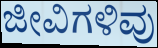
ಜೀವಿಗಳಿವು